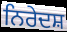
ਨਿਰੇਦਸ਼